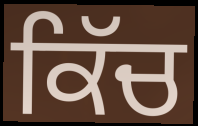
ਕਿੱਚ